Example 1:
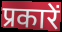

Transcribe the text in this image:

प्रकारें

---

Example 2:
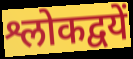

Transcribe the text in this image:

श्लोकद्वयें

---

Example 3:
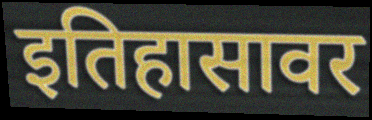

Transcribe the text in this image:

इतिहासावर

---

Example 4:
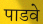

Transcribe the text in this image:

पाडवे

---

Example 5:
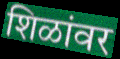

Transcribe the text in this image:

शिळांवर